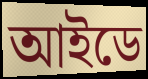
আইডে